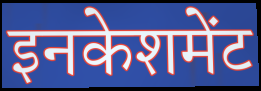
इनकेशमेंट